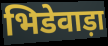
भिडेवाड़ा